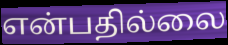
என்பதில்லை